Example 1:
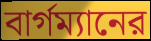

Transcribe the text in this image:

বার্গম্যানের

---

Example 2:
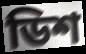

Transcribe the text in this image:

ডিশ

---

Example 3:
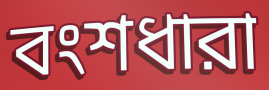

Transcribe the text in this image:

বংশধারা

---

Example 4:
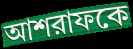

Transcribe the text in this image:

আশরাফকে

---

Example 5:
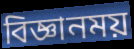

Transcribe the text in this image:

বিজ্ঞানময়